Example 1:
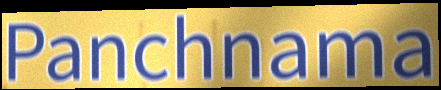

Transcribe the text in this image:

Panchnama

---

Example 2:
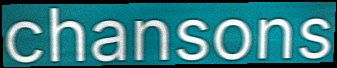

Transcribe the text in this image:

chansons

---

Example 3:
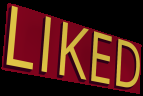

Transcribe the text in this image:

LIKED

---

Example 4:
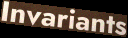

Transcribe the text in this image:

Invariants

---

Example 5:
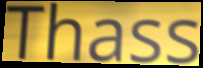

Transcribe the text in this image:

Thass